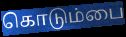
கொடும்பை